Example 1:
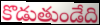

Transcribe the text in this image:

కొడుతుండేది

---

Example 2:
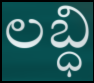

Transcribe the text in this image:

లబ్ధి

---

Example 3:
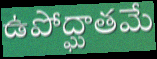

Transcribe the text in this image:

ఉపోద్ఘాతమే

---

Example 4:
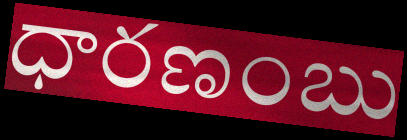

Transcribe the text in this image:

ధారణంబు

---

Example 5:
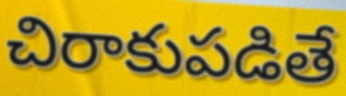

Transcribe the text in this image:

చిరాకుపడితే